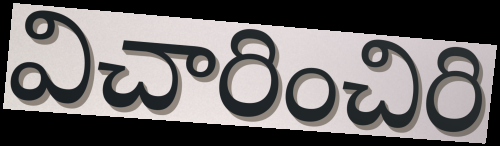
విచారించిరి